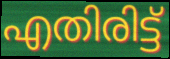
എതിരിട്ട്